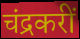
चंद्रकरीं